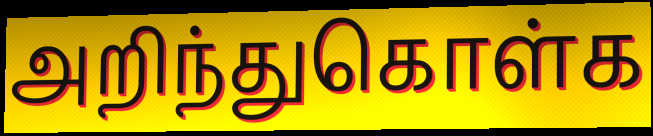
அறிந்துகொள்க